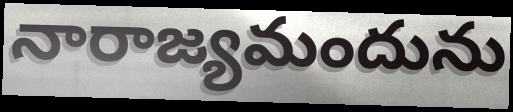
నారాజ్యమందును